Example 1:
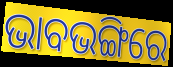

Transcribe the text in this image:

ଭାବଭଙ୍ଗିରେ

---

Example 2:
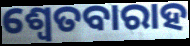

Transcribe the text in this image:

ଶ୍ଵେତବାରାହ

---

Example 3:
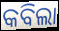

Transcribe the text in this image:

କବିଲା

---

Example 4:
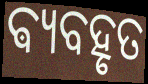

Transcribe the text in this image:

ଵ୍ୟବହୃତ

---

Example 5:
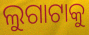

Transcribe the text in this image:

ଲୁଗାଟାକୁ